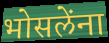
भोसलेंना